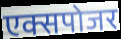
एक्सपोजर